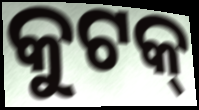
କୁଟକ୍